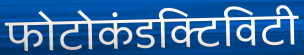
फोटोकंडक्टिविटी